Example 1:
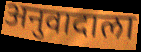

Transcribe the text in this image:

अनुवादाला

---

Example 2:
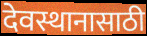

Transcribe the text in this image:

देवस्थानासाठी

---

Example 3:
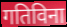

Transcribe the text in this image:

गतिविना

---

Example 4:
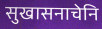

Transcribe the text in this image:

सुखासनाचेनि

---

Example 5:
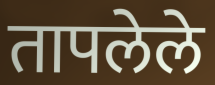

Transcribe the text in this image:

तापलेले